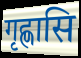
गृह्णासि